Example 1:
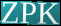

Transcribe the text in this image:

ZPK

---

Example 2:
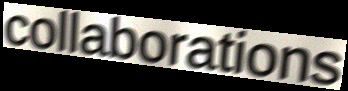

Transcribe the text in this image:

collaborations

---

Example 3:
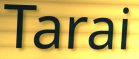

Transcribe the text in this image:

Tarai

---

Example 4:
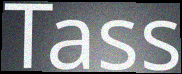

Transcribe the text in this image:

Tass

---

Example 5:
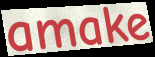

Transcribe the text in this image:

amake